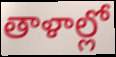
తాళాల్లో